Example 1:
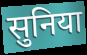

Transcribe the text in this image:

सुनिया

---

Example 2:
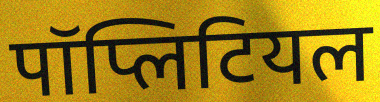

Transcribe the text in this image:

पॉप्लिटियल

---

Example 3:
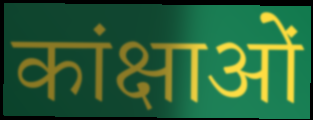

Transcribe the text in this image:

कांक्षाओं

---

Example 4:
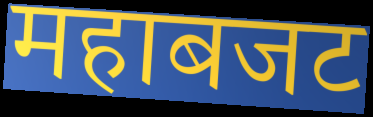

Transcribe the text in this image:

महाबजट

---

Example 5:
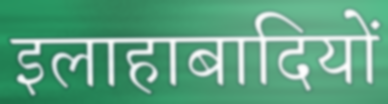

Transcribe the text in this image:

इलाहाबादियों